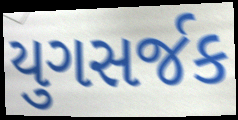
યુગસર્જક